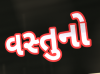
વસ્તુનો